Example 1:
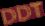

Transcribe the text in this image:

DDT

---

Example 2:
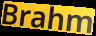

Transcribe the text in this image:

Brahm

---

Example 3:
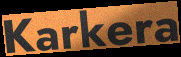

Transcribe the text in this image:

Karkera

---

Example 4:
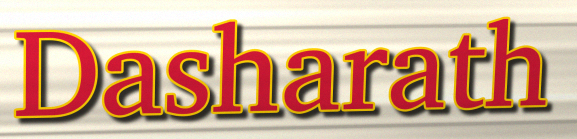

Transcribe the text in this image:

Dasharath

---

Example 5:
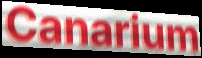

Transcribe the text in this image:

Canarium